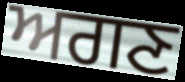
ਅਗਣ